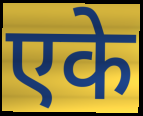
एके